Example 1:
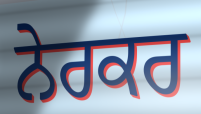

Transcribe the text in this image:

ਨੇਰਕਰ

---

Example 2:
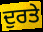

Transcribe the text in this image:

ਦੁਰਤੇ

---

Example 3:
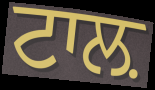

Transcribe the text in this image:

ਟਾਲ਼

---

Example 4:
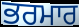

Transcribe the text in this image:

ਭਰਮਾਰ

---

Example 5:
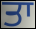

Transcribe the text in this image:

ਤਾ